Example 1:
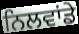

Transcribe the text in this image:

ਨਿਲਵਾਂਡੇ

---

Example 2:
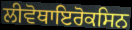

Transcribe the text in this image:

ਲੀਵੋਥਾਇਰੋਕਸਿਨ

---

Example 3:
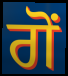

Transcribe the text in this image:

ਗੋਂ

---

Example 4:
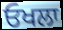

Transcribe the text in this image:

ਓਖਲਾ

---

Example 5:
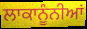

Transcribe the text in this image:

ਲਾਕਾਨੂੰਨੀਆਂ